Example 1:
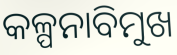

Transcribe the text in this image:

କଳ୍ପନାବିମୁଖ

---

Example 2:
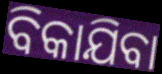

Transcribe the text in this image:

ବିକାଯିବା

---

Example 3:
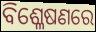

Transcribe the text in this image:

ବିଶ୍ଳେଷଣରେ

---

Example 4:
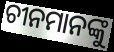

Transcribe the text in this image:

ଚୀନମାନଙ୍କୁ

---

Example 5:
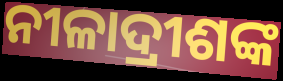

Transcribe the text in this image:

ନୀଳାଦ୍ରୀଶଙ୍କ